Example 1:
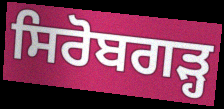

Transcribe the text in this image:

ਸਿਰੋਬਗੜ੍ਹ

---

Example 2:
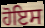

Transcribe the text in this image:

ਹੋਇਸ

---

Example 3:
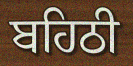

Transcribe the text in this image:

ਬਹਿਠੀ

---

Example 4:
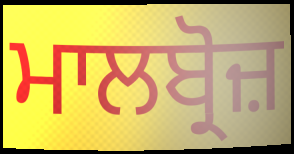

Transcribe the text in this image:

ਮਾਲਬ੍ਰੋਜ਼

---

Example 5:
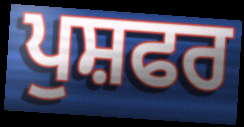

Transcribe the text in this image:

ਪੁਸ਼ਫਰ